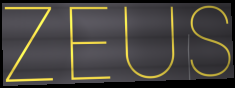
ZEUS